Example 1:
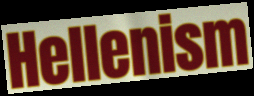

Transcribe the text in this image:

Hellenism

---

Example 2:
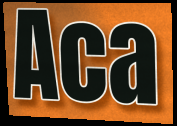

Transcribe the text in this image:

Aca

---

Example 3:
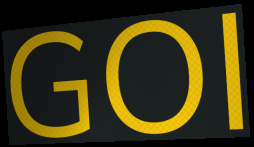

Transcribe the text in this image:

GOI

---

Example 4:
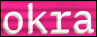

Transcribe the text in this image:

okra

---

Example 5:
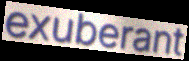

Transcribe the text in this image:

exuberant